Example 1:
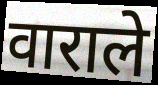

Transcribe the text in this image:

वाराले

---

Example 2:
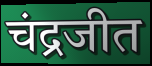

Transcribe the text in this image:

चंद्रजीत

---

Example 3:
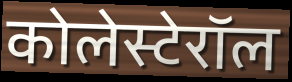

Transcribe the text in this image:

कोलेस्टेरॉल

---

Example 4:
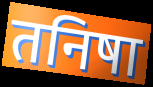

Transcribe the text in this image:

तनिषा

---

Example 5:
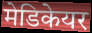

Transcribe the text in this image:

मेडिकेयर